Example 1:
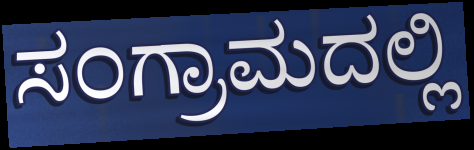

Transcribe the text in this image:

ಸಂಗ್ರಾಮದಲ್ಲಿ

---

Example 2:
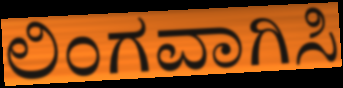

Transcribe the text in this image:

ಲಿಂಗವಾಗಿಸಿ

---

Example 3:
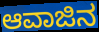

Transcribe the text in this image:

ಆವಾಜಿನ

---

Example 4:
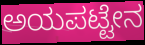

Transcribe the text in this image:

ಅಯಪಟ್ಟೇನ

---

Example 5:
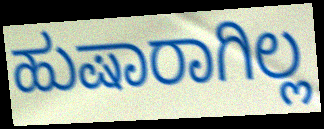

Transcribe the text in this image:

ಹುಷಾರಾಗಿಲ್ಲ